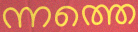
ന്നത്തെ